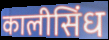
कालीसिंध